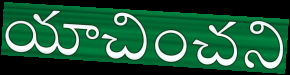
యాచించని